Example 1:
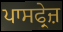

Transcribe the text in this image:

ਪਾਸਫ੍ਰੇਜ਼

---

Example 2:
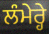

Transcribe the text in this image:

ਲੰਮੇਰ੍ਹੇ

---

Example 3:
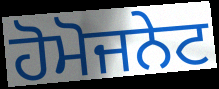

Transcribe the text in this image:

ਹੋਮੋਜਨੇਟ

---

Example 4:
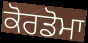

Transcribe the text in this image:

ਕੋਰਡੋਮਾ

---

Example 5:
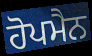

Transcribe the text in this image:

ਹੋਪਮੈਨ